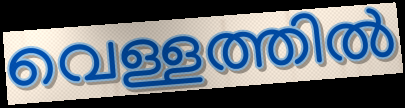
വെള്ളത്തിൽ